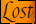
Lost